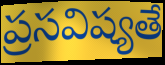
ప్రసవిష్యతే